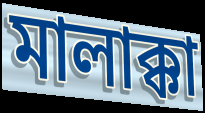
মালাক্কা